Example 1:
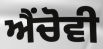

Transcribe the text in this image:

ਐਂਚੋਵੀ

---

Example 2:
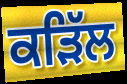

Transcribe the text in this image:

ਕੜਿੱਲ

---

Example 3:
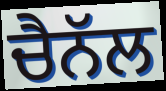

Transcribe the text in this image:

ਚੈਨੱਲ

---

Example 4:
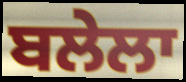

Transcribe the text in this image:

ਬਲੇਲਾ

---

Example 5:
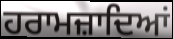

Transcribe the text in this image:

ਹਰਾਮਜ਼ਾਦਿਆਂ